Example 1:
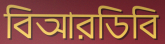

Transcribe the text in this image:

বিআরডিবি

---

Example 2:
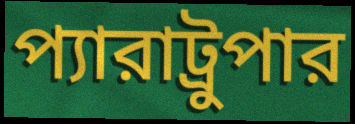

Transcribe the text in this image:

প্যারাট্রুপার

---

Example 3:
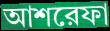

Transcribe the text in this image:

আশরেফা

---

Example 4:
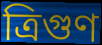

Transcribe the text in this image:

ত্রিগুণ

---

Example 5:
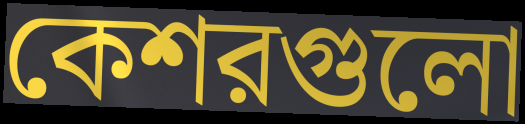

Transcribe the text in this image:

কেশরগুলো